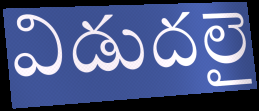
విడుదలై